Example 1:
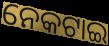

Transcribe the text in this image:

ନେକଟାଇ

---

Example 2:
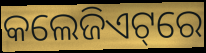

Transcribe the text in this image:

କଲେଜିଏଟ୍‌ରେ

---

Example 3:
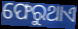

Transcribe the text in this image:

ଫେରୁଥାଏ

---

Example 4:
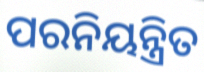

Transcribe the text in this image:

ପରନିୟନ୍ତ୍ରିତ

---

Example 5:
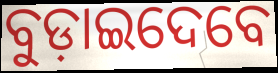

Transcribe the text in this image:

ବୁଡ଼ାଇଦେବେ